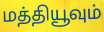
மத்தியூவும்